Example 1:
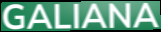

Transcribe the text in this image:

GALIANA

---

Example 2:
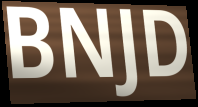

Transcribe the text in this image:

BNJD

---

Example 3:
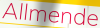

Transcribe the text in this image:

Allmende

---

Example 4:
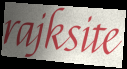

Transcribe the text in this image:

rajksite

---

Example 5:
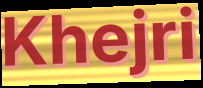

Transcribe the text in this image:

Khejri